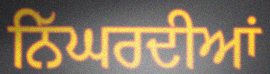
ਨਿੱਘਰਦੀਆਂ